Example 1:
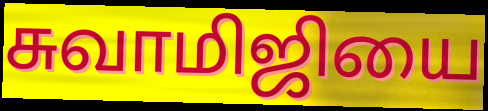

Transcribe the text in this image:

சுவாமிஜியை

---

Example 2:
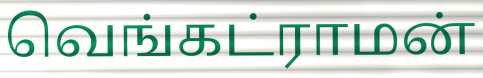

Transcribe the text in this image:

வெங்கட்ராமன்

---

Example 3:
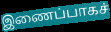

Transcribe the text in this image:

இணைப்பாகச்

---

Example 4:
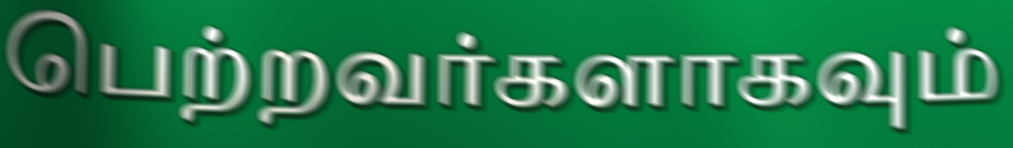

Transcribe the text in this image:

பெற்றவர்களாகவும்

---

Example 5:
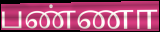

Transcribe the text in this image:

பண்ணா